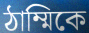
ঠাম্মিকে